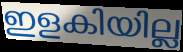
ഇളകിയില്ല